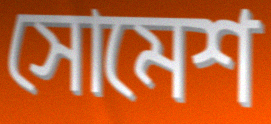
সোমেশ